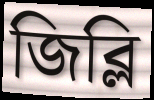
জিব্লি